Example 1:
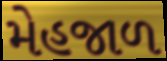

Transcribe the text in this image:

મેહજાળ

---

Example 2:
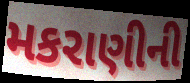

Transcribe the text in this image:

મકરાણીની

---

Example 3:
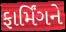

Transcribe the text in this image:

ફાર્મિંગને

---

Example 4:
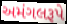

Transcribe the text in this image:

અમંગલરૂપે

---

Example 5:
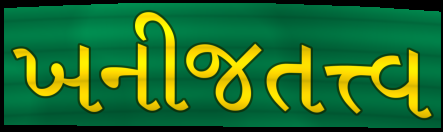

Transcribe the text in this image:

ખનીજતત્ત્વ